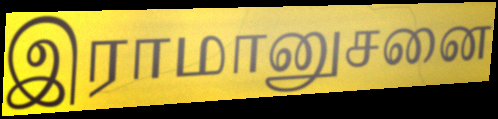
இராமானுசனை